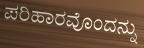
ಪರಿಹಾರವೊಂದನ್ನು